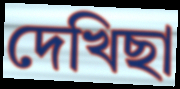
দেখিছা